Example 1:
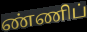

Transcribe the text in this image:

ண்ணிப்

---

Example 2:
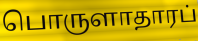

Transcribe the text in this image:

பொருளாதாரப்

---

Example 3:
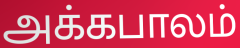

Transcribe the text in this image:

அக்கபாலம்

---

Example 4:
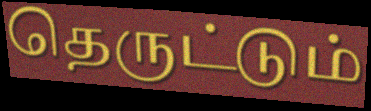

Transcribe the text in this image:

தெருட்டும்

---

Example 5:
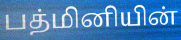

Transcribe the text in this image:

பத்மினியின்